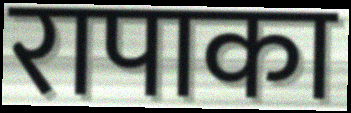
रापाका